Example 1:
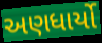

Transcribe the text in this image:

અણધાર્યો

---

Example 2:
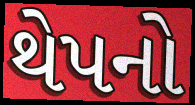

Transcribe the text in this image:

થેપનો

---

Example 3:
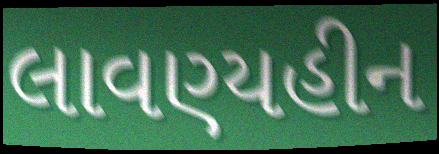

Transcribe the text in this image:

લાવણ્યહીન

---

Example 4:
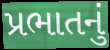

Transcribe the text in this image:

પ્રભાતનું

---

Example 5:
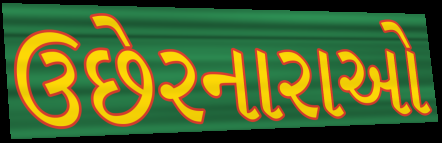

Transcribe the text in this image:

ઉછેરનારાઓ